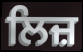
ਲਿਜ਼